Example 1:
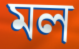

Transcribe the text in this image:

মল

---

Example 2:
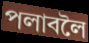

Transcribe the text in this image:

পলাবলৈ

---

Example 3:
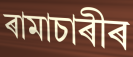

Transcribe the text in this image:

ৰামাচাৰীৰ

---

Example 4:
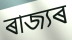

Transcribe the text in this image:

ৰাজ্যৰ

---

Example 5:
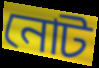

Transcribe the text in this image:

নোট